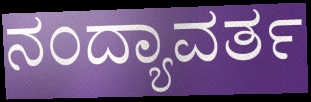
ನಂದ್ಯಾವರ್ತ